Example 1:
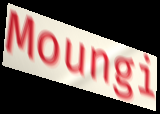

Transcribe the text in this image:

Moungi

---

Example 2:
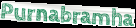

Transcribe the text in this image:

Purnabramha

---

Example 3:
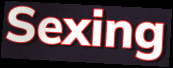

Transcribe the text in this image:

Sexing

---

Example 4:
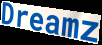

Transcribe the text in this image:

Dreamz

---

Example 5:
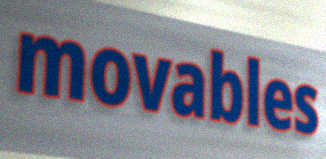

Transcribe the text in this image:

movables